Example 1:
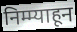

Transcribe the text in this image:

निम्म्याहून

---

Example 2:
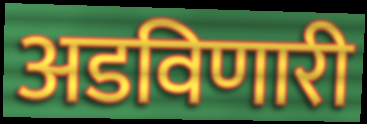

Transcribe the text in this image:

अडविणारी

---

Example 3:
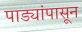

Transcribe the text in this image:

पाड्यांपासून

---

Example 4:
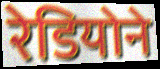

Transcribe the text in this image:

रेडियोने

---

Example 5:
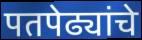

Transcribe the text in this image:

पतपेढ्यांचे